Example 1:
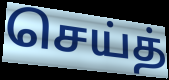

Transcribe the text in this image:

செய்த்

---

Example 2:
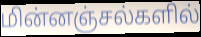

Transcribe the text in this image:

மின்னஞ்சல்களில்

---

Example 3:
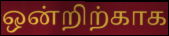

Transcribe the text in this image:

ஒன்றிற்காக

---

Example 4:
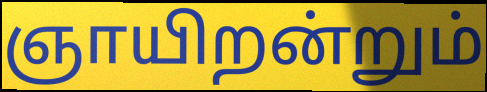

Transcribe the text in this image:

ஞாயிறன்றும்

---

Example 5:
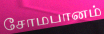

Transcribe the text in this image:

சோமபானம்